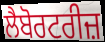
ਲੈਬੋਰਟਰੀਜ਼